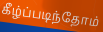
கீழ்ப்படிந்தோம்